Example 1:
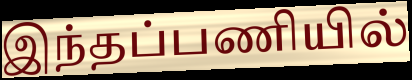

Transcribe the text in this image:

இந்தப்பணியில்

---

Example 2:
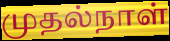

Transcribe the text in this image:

முதல்நாள்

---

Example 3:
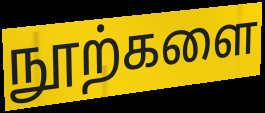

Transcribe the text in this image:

நூற்களை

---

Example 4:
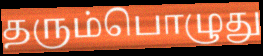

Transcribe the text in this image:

தரும்பொழுது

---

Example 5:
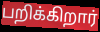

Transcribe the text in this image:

பறிக்கிறார்